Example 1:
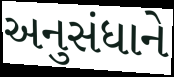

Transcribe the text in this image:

અનુસંધાને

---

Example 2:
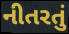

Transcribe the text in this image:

નીતરતું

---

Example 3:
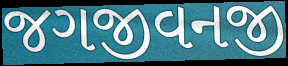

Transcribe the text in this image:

જગજીવનજી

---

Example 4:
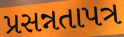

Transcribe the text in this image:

પ્રસન્નતાપત્ર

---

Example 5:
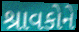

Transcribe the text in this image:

શ્રાવકોને